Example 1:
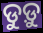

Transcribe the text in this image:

ଡୁଡ଼ୁ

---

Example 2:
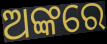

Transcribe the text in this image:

ଅଙ୍କରେ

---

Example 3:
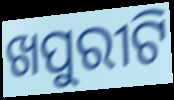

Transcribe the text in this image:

ଖପୁରୀଟି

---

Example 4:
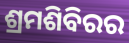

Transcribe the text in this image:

ଶ୍ରମଶିବିରର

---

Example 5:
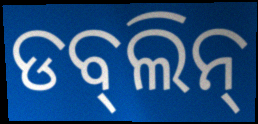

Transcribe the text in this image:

ଡବ୍‌ଲିନ୍